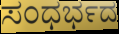
ಸಂಧರ್ಭದ